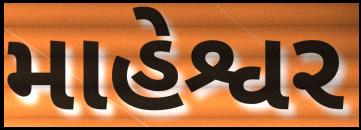
માહેશ્વર